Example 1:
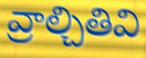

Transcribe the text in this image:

వ్రాల్చితివి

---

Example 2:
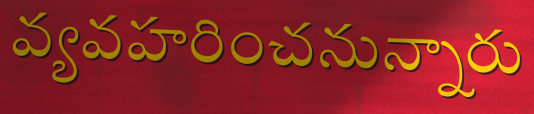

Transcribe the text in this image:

వ్యవహరించనున్నారు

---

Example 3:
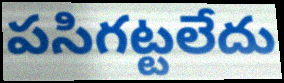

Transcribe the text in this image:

పసిగట్టలేదు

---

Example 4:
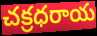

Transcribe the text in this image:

చక్రధరాయ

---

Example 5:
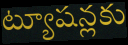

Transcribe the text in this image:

ట్యూషన్లకు